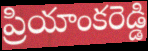
ప్రియాంకరెడ్డి